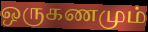
ஒருகணமும்